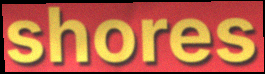
shores